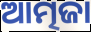
ଆତ୍ମଜା